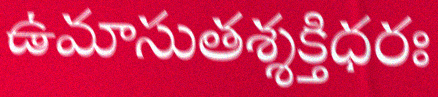
ఉమాసుతశ్శక్తిధరః